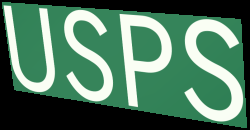
USPS